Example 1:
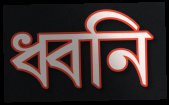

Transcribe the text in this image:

ধ্বনি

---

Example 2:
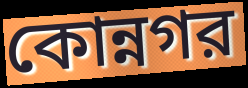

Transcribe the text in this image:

কোন্নগর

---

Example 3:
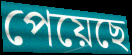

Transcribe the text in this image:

পেয়েছে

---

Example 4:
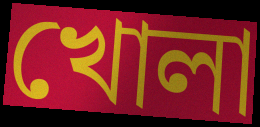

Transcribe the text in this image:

খোলা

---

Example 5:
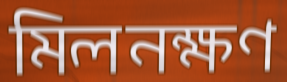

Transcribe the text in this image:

মিলনক্ষণ